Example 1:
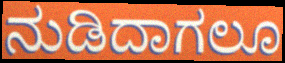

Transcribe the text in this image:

ನುಡಿದಾಗಲೂ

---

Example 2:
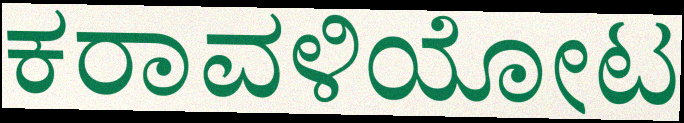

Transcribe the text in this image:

ಕರಾವಳಿಯೋಟ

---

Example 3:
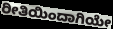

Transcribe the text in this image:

ರೀತಿಯಿಂದಾಗಿಯೇ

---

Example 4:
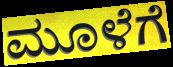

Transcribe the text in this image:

ಮೂಳೆಗೆ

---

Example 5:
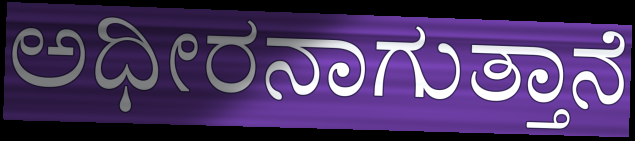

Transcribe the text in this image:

ಅಧೀರನಾಗುತ್ತಾನೆ